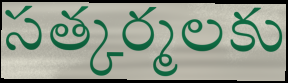
సత్కర్మలకు